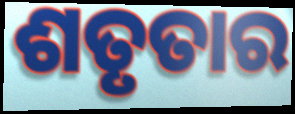
ଶତୃତାର